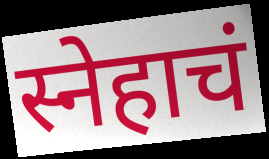
स्नेहाचं